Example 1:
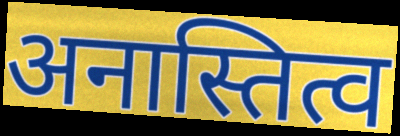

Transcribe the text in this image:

अनास्तित्व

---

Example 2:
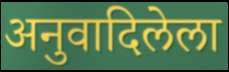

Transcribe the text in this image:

अनुवादिलेला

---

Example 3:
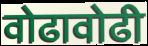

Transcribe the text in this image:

वोढावोढी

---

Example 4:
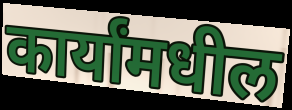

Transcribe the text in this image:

कार्यांमधील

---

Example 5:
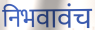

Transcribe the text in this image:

निभवावंच